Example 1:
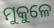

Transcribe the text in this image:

ମୁକୁଳେ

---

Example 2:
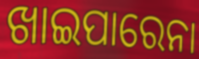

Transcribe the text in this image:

ଖାଇପାରେନା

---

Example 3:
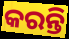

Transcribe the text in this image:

କରନ୍ତି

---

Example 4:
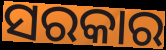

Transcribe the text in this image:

ସରକାର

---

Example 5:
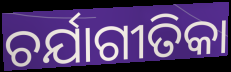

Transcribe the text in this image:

ଚର୍ଯାଗୀତିକା